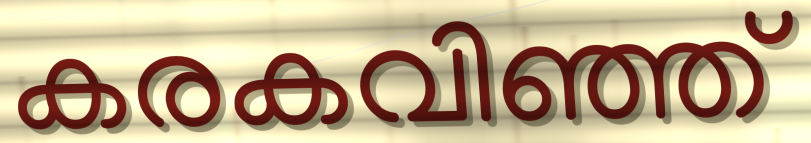
കരകവിഞ്ഞ്